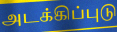
அடக்கிப்புடு